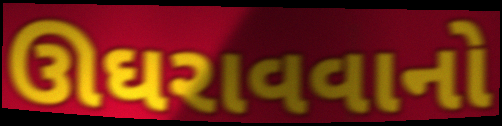
ઊઘરાવવાનો